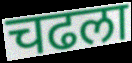
चढला